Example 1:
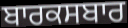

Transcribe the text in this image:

ਬਾਰਕਸਬਾਰ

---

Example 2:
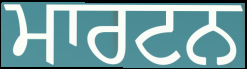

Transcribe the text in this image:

ਮਾਰਟਨ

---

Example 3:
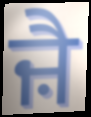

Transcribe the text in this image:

ਜ਼ੈ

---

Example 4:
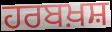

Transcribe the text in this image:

ਹਰਬਖ਼ਸ਼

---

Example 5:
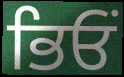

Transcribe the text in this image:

ਭਿਓਂ